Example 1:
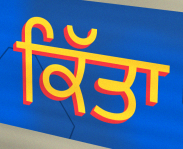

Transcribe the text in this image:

ਕਿੱਤਾ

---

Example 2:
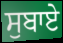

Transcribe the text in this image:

ਸੁਬਾਏ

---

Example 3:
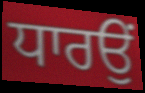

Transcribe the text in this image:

ਧਾਰਉਂ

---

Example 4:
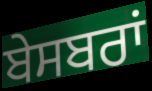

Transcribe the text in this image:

ਬੇਸਬਰਾਂ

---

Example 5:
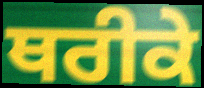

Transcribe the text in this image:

ਥਰੀਕੇ